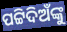
ପଟ୍ଟିଦିଅଁଙ୍କୁ